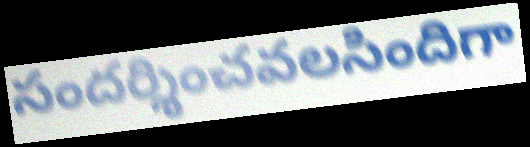
సందర్శించవలసిందిగా